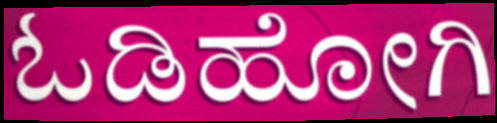
ಓಡಿಹೋಗಿ